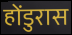
होंडुरास